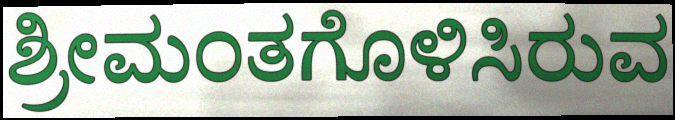
ಶ್ರೀಮಂತಗೊಳಿಸಿರುವ